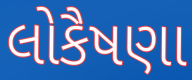
લોકૈષણા